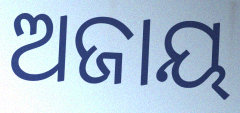
ଅଜାୟ